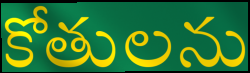
కోతులను